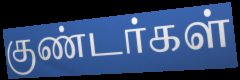
குண்டர்கள்